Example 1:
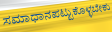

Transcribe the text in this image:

ಸಮಾಧಾನಪಟ್ಟುಕೊಳ್ಳಬೇಕು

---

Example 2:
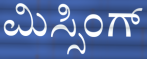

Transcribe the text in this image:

ಮಿಸ್ಸಿಂಗ್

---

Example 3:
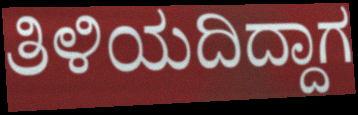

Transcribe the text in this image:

ತಿಳಿಯದಿದ್ದಾಗ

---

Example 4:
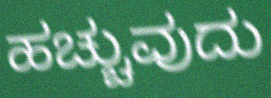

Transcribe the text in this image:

ಹಚ್ಚುವುದು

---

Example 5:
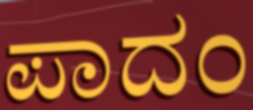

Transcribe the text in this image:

ಪಾದಂ